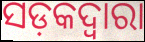
ସଡ଼କଦ୍ୱାରା